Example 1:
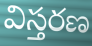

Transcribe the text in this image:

విస్తరణ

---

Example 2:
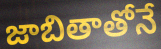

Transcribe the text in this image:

జాబితాతోనే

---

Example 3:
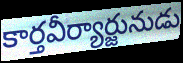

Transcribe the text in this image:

కార్తవీర్యార్జునుడు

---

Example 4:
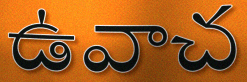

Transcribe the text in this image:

ఉవాచ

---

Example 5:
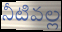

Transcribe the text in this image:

నీటివల్ల